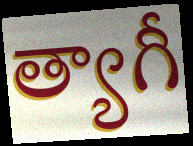
త్యాగీ